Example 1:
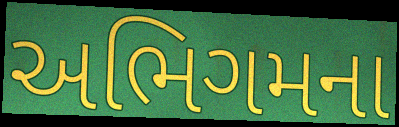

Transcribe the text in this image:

અભિગમના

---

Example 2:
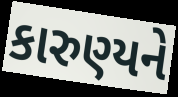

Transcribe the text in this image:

કારુણ્યને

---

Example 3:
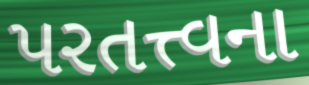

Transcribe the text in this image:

પરતત્ત્વના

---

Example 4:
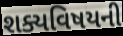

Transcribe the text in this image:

શક્યવિષયની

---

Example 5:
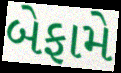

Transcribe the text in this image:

બેફામે